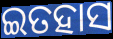
ଇତହାସ